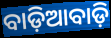
ବାଡ଼ିଆବାଡ଼ି